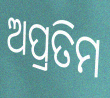
ଅପ୍ରତିମ